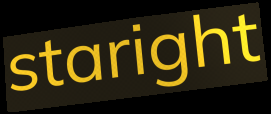
staright